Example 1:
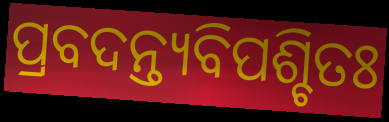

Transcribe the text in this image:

ପ୍ରବଦନ୍ତ୍ୟବିପଶ୍ଚିତଃ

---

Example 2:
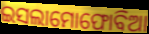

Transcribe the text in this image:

ଇସଲାମୋଫୋବିଆ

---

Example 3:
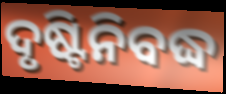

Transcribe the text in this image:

ଦୃଷ୍ଟିନିବଦ୍ଧ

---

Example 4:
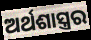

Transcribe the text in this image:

ଅର୍ଥଶାସ୍ତ୍ରର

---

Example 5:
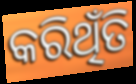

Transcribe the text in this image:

କରିଥିଁତି